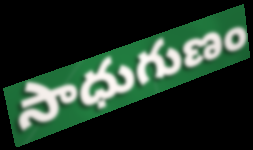
సాధుగుణం